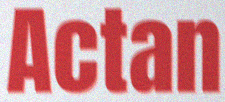
Actan